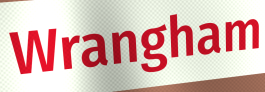
Wrangham